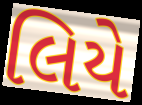
લિયે